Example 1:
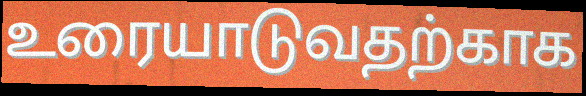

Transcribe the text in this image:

உரையாடுவதற்காக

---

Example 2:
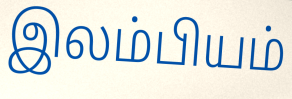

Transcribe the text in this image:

இலம்பியம்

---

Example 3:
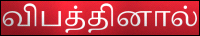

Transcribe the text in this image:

விபத்தினால்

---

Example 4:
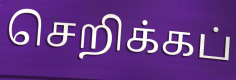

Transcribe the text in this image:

செறிக்கப்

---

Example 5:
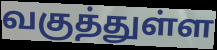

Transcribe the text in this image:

வகுத்துள்ள